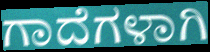
ಗಾದೆಗಳಾಗಿ